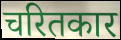
चरितकार